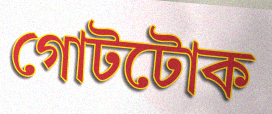
গোটটোক